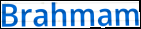
Brahmam